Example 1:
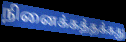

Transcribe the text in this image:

நினைக்கத்தக்கது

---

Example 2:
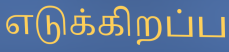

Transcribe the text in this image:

எடுக்கிறப்ப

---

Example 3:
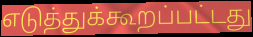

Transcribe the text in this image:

எடுத்துக்கூறப்பட்டது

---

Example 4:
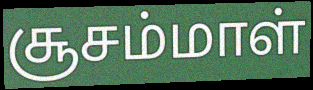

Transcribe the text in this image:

சூசம்மாள்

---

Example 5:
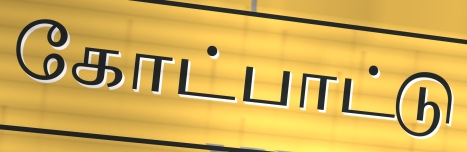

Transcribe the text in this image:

கோட்பாட்டு